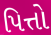
પિત્તો